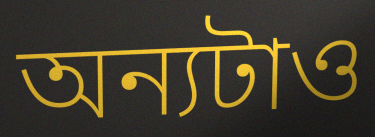
অন্যটাও